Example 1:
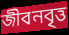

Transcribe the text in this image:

জীবনবৃত্ত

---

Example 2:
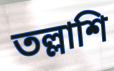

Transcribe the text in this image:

তল্লাশি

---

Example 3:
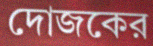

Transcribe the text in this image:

দোজকের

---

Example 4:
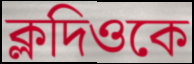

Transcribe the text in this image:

ক্লদিওকে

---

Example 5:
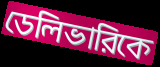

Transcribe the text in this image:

ডেলিভারিকে